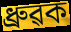
ধ্ৰুৱক